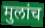
मुलांच